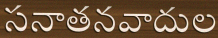
సనాతనవాదుల